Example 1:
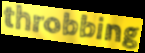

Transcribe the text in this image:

throbbing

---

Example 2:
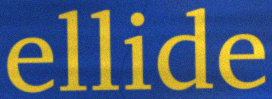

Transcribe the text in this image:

ellide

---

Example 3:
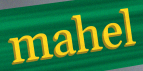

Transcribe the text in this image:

mahel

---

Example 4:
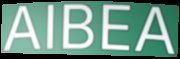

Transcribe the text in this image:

AIBEA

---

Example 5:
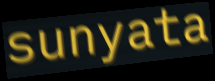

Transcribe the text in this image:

sunyata